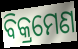
ବିକ୍ରମେଣ